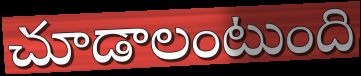
చూడాలంటుంది